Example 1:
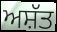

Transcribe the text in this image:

ਅਸ਼ੱਤ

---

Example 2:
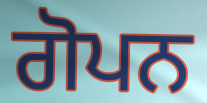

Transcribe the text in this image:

ਗੋਪਨ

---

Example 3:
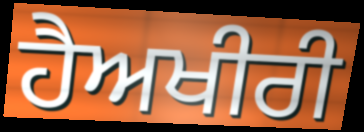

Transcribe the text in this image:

ਹੈਅਖੀਰੀ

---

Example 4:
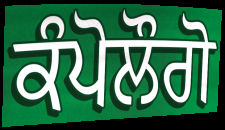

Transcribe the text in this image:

ਕੰਪੋਲੌਗੋ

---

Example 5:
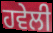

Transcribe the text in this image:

ਹਵੇਲੀ